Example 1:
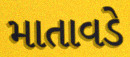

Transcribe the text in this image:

માતાવડે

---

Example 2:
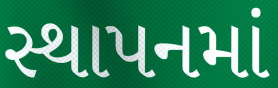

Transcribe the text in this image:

સ્થાપનમાં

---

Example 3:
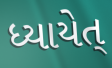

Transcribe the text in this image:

ધ્યાયેત્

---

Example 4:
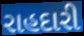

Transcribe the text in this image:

રાહદારી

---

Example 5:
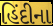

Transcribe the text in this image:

હિંદીના